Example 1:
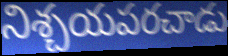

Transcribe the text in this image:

నిశ్చయపరచాడు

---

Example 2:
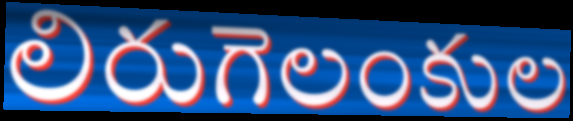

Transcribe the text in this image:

లిరుగెలంకుల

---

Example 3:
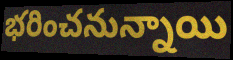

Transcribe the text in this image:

భరించనున్నాయి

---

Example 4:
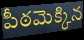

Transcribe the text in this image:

పీఠమెక్కిన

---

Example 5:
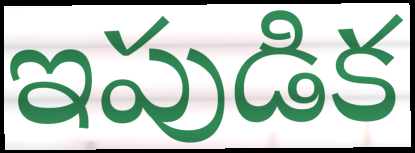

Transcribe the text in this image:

ఇపుడిక